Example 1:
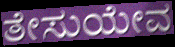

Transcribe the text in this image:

ತೇಸುಯೇವ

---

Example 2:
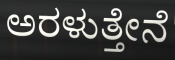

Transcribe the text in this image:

ಅರಳುತ್ತೇನೆ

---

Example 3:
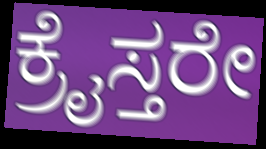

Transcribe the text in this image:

ಕ್ರೈಸ್ತರೇ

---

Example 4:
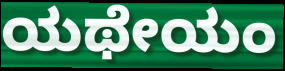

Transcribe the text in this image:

ಯಥೇಯಂ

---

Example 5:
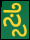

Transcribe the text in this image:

ಸ್ಸೆ